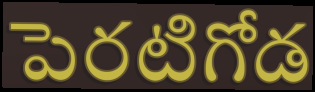
పెరటిగోడ